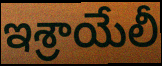
ఇశ్రాయేలీ